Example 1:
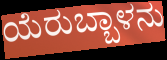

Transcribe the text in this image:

ಯೆರುಬ್ಬಾಳನು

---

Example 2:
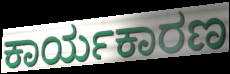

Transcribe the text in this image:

ಕಾರ್ಯಕಾರಣ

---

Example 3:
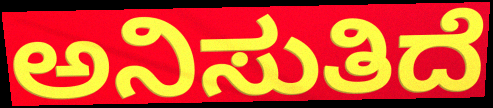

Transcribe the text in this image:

ಅನಿಸುತಿದೆ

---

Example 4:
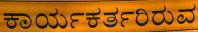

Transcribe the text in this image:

ಕಾರ್ಯಕರ್ತರಿರುವ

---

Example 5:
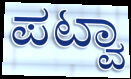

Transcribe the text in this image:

ಪಟ್ವಾ